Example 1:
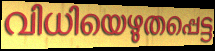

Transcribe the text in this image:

വിധിയെഴുതപ്പെട്ട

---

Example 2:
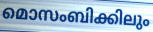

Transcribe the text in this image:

മൊസംബിക്കിലും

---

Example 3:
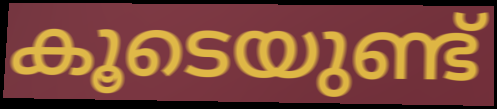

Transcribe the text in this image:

കൂടെയുണ്ട്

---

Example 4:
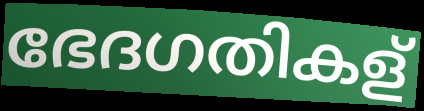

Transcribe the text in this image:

ഭേദഗതികള്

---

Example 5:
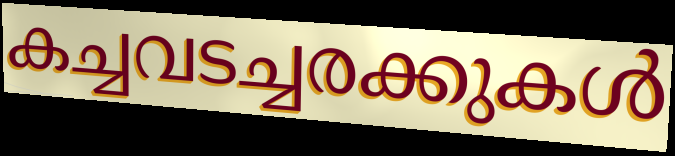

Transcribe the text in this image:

കച്ചവടച്ചരക്കുകൾ